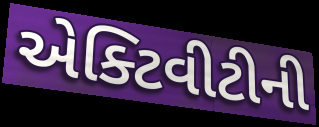
એક્ટિવીટીની